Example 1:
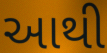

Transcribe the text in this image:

આથી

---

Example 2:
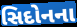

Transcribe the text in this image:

સિદોનના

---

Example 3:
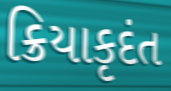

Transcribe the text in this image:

ક્રિયાકૃદંત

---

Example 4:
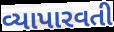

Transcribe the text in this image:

વ્યાપારવતી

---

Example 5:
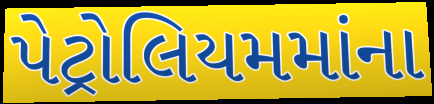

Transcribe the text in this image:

પેટ્રોલિયમમાંના